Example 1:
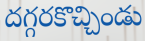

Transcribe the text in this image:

దగ్గరకొచ్చిండు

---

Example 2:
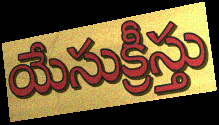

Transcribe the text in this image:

యేసుక్రీస్తు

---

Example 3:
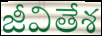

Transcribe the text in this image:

జీవితేశ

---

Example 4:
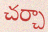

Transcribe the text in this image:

చర్చా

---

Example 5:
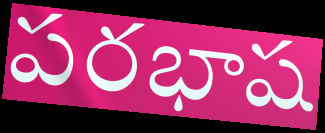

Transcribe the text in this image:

పరభాష